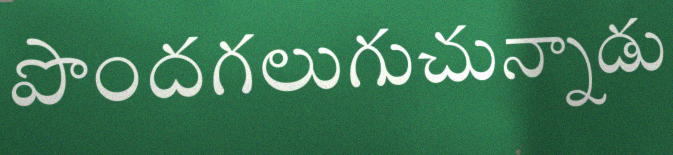
పొందగలుగుచున్నాడు